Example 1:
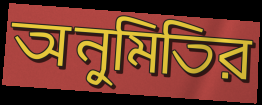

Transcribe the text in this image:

অনুমিতির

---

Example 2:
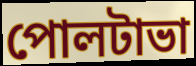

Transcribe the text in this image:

পোলটাভা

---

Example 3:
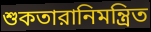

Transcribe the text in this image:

শুকতারানিমন্ত্রিত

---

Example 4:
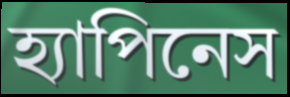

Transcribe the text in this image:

হ্যাপিনেস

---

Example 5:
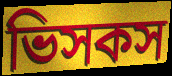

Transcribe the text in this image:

ভিসকস